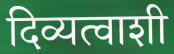
दिव्यत्वाशी